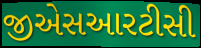
જીએસઆરટીસી